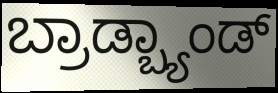
ಬ್ರಾಡ್ಬ್ಯಾಂಡ್